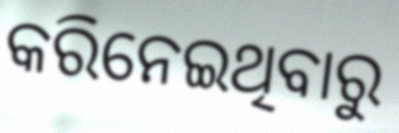
କରିନେଇଥିବାରୁ